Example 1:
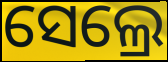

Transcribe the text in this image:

ସେଲ୍ରେ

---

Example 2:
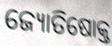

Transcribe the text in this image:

ଜ୍ୟୋତିଷୋକ୍ତ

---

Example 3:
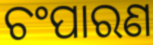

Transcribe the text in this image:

ଚଂପାରଣ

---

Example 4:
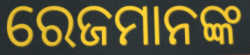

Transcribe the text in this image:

ରେଜମାନଙ୍କ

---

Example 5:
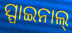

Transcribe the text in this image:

ସ୍ପାଇନାଲ୍